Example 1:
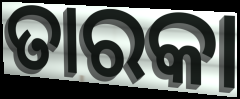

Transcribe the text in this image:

ତାରକା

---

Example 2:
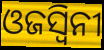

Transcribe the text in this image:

ଓଜସ୍ଵିନୀ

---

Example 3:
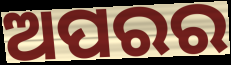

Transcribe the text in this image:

ଅପରର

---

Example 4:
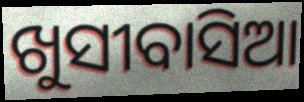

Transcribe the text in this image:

ଖୁସୀବାସିଆ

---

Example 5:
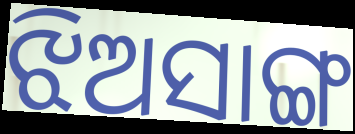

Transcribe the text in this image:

ଝିଅସାଙ୍ଗ